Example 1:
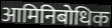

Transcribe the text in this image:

आमिनिबोधिक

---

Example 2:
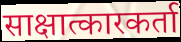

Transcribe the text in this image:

साक्षात्कारकर्ता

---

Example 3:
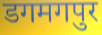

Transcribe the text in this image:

डगमगपुर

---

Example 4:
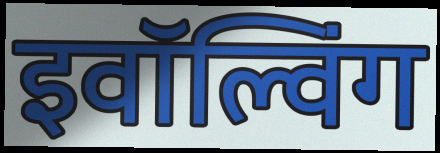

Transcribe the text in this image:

इवॉल्विंग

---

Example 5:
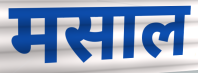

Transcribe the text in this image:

मसाल